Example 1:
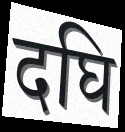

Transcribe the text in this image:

दघि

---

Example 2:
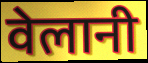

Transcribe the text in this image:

वेलानी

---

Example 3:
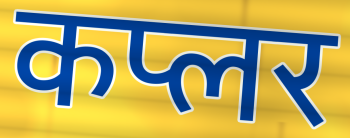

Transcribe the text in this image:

कप्लर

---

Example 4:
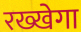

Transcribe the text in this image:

रख्खेगा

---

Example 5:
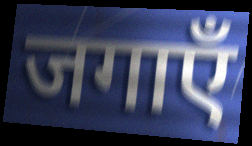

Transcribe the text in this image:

जगाएँ